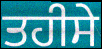
ਤਹੀਸੇ